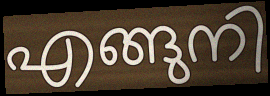
എങ്ങുനി